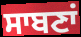
ਸਾਬਣਾਂ